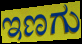
ಇಣಗು